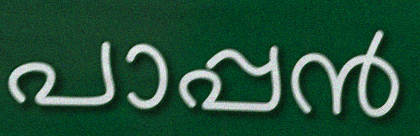
പാപ്പൻ